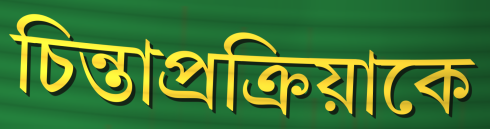
চিন্তাপ্রক্রিয়াকে